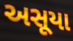
અસૂયા